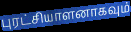
புரட்சியாளனாகவும்